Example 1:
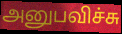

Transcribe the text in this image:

அனுபவிச்சு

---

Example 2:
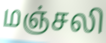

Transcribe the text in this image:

மஞ்சலி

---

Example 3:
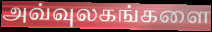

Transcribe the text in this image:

அவ்வுலகங்களை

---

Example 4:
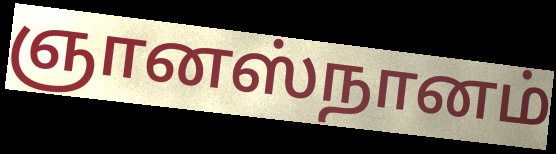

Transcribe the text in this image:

ஞானஸ்நானம்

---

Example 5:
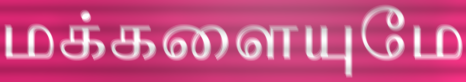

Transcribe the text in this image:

மக்களையுமே